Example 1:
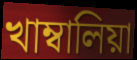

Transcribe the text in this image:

খাম্বালিয়া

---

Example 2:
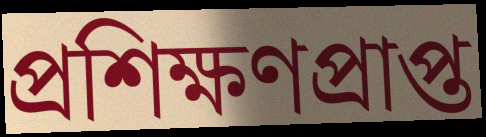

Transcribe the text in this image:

প্ৰশিক্ষণপ্ৰাপ্ত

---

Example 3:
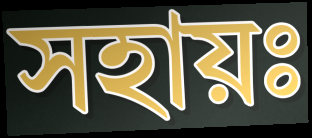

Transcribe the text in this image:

সহায়ঃ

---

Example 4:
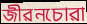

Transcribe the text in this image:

জীৱনচোৱা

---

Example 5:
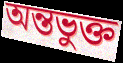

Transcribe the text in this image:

অন্তভুক্ত